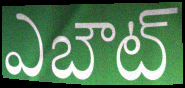
ఎబౌట్